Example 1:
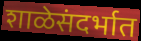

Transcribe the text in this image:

शाळेसंदर्भात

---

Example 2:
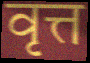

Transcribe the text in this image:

वृत्त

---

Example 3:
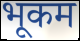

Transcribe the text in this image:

भूकम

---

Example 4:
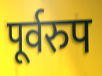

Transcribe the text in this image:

पूर्वरुप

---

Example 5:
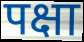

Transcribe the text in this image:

पक्षा